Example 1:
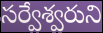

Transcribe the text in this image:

సర్వేశ్వరుని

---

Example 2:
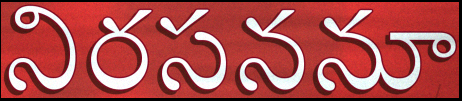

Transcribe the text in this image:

నిరసననూ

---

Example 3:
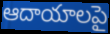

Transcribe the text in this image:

ఆదాయాలపై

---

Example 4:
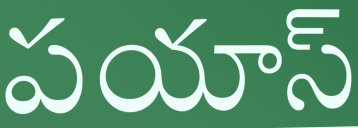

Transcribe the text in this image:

పయాస్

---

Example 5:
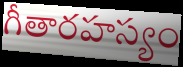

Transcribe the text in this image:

గీతారహస్యం